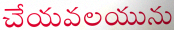
చేయవలయును